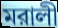
মরালী